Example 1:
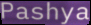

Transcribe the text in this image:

Pashya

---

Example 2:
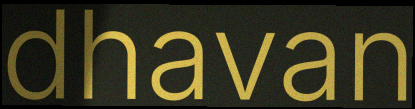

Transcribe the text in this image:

dhavan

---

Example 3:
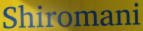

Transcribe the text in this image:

Shiromani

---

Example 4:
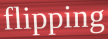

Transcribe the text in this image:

flipping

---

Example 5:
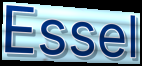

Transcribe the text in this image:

Essel